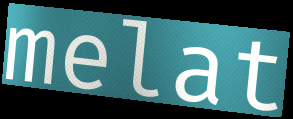
melat